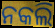
ନକଲି